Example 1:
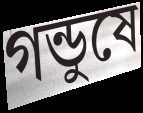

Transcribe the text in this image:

গন্ডুষে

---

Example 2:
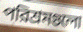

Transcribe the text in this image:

পরিশ্রমগুলো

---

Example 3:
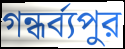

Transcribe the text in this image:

গন্ধর্ব্যপুর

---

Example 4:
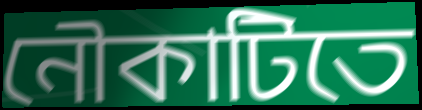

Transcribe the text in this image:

নৌকাটিতে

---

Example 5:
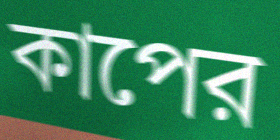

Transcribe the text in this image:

কাপের